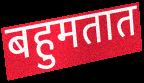
बहुमतात